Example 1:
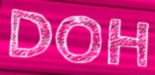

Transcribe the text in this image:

DOH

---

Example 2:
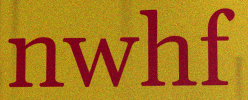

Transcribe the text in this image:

nwhf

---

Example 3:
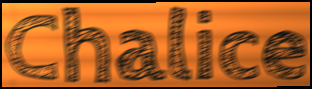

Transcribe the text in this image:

Chalice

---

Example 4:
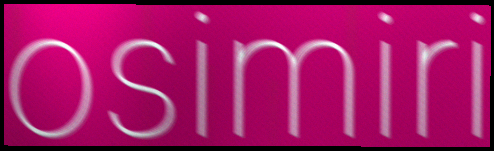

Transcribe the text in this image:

osimiri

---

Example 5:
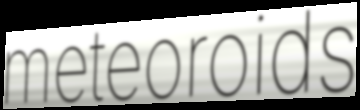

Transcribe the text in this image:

meteoroids